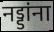
नड्डांना